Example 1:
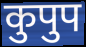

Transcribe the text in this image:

कुपुप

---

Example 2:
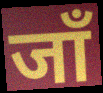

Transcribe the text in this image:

जाँ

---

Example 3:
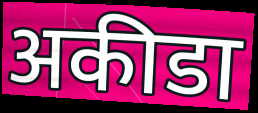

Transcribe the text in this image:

अकीडा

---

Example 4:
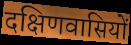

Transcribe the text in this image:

दक्षिणवासियों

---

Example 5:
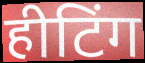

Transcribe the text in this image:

हीटिंग